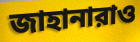
জাহানারাও